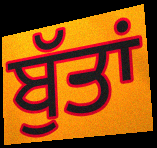
ਬੁੱਤਾਂ